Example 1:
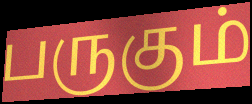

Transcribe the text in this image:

பருகும்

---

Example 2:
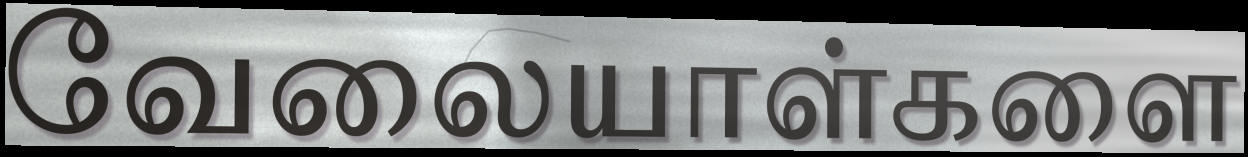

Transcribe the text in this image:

வேலையாள்களை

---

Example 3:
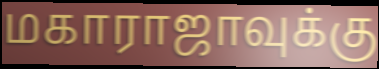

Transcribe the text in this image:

மகாராஜாவுக்கு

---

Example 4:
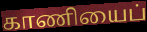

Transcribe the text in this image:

காணியைப்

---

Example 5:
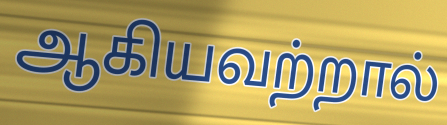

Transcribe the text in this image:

ஆகியவற்றால்